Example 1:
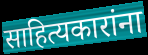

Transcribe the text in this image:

साहित्यकारांना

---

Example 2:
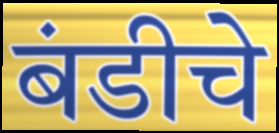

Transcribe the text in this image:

बंडीचे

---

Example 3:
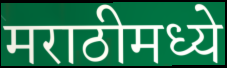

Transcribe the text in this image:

मराठीमध्ये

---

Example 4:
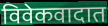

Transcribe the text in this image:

विवेकवादात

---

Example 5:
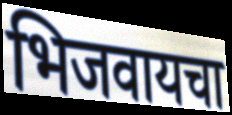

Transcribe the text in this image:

भिजवायचा